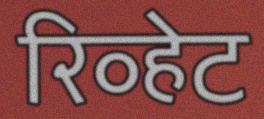
रिव्हेट